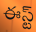
ఈస్ట్